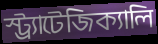
স্ট্র্যাটেজিক্যালি